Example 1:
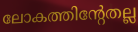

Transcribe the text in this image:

ലോകത്തിന്റേതല്ല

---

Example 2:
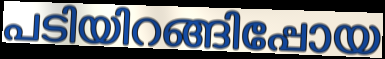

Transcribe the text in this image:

പടിയിറങ്ങിപ്പോയ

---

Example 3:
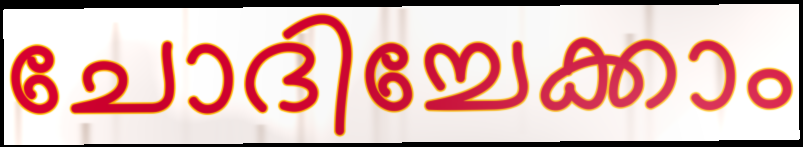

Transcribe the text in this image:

ചോദിച്ചേക്കാം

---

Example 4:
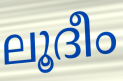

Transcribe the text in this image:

ലൂദീം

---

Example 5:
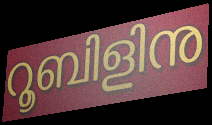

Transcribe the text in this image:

റൂബിളിനു